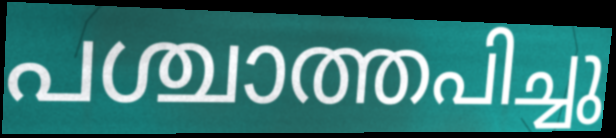
പശ്ചാത്തപിച്ചു